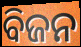
ବିଜନ